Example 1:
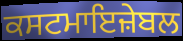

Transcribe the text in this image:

ਕਸਟਮਾਇਜ਼ੇਬਲ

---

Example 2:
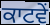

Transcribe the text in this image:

ਕਾਟਵੇਂ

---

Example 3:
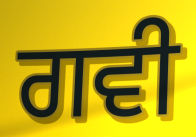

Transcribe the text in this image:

ਗਵੀ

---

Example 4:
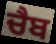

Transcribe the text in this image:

ਚੈਬ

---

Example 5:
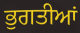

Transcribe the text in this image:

ਭੁਗਤੀਆਂ